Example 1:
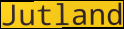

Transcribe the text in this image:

Jutland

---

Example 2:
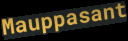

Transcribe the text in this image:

Mauppasant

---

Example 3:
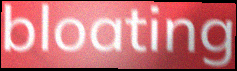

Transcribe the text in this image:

bloating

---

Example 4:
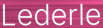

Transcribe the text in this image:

Lederle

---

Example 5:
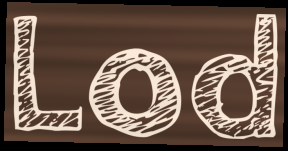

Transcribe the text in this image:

Lod